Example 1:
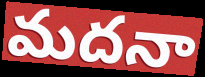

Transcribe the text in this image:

మదనా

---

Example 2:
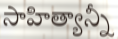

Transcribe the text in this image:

సాహిత్యాన్నీ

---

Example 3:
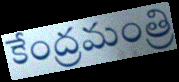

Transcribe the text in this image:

కేంద్రమంత్రి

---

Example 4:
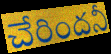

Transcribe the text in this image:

చేరిందనీ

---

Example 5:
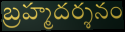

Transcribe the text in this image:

బ్రహ్మదర్శనం